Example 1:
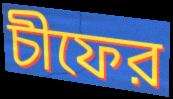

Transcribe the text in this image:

চীফের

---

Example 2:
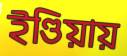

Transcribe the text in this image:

ইণ্ডিয়ায়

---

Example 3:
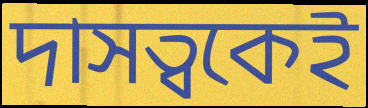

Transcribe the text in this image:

দাসত্বকেই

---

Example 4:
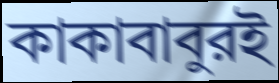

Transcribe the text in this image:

কাকাবাবুরই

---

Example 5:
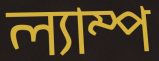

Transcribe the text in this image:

ল্যাম্প